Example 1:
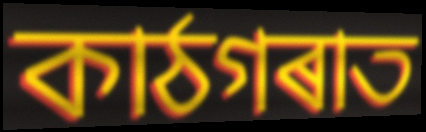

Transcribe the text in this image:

কাঠগৰাত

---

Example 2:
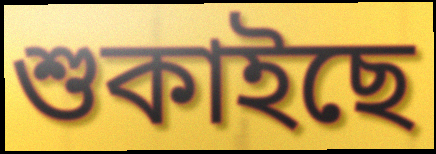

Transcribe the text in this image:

শুকাইছে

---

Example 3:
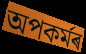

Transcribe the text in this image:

অপকৰ্মৰ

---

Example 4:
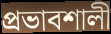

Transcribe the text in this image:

প্ৰভাবশালী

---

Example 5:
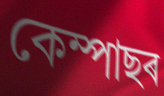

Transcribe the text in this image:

কেম্পাছৰ